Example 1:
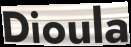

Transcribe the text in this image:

Dioula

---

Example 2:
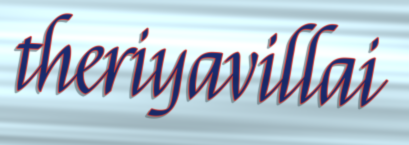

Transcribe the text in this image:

theriyavillai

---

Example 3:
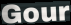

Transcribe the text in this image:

Gour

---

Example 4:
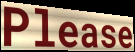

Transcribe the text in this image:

Please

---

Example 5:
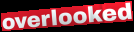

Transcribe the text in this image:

overlooked